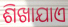
ଶିଖାଯାଏ